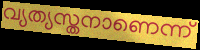
വ്യത്യസ്തനാണെന്ന്